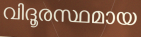
വിദൂരസ്ഥമായ